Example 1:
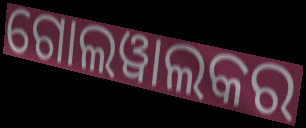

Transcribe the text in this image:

ଗୋଲୱାଲକର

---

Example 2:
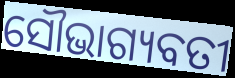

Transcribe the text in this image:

ସୌଭାଗ୍ୟବତୀ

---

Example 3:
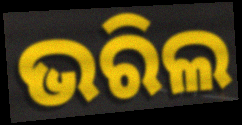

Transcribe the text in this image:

ଭରିଲ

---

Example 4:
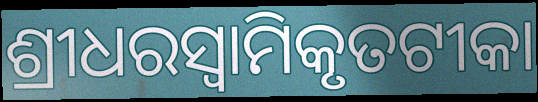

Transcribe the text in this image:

ଶ୍ରୀଧରସ୍ଵାମିକୃତଟୀକା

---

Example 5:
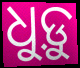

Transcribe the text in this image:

ଧୁଡ଼ୁ